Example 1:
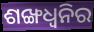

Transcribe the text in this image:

ଶଙ୍ଖଧ୍ବନିର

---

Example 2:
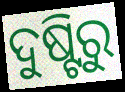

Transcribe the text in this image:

ଦୁଷ୍ଟିରୁ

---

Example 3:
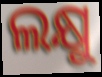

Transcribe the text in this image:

ଲକ୍ଷୁ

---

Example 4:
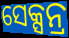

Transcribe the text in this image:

ସେକ୍ସନ୍ର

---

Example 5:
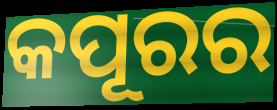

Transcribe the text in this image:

କପୂରର